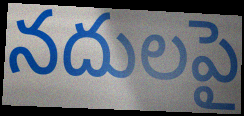
నదులపై